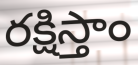
రక్షిస్తాం